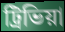
ট্রিভিয়া